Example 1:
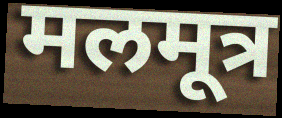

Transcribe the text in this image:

मलमूत्र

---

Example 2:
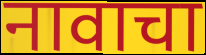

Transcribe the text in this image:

नावाचा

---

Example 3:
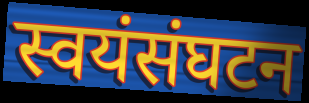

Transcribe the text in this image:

स्वयंसंघटन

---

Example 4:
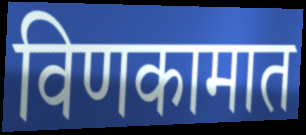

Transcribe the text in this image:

विणकामात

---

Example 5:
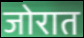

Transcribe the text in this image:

जोरात